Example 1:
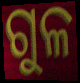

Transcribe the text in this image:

ଗୁଳ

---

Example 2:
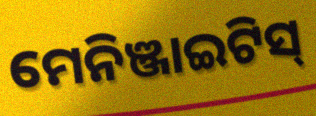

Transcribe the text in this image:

ମେନିଞ୍ଜାଇଟିସ୍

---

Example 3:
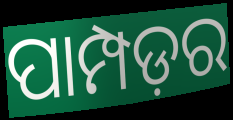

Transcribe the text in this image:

ପାମ୍ପଡ଼ର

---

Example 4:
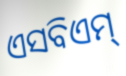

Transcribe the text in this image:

ଏସବିଏମ୍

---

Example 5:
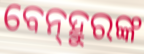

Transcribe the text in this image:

ବେନ୍‍ହୁରଙ୍କ